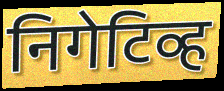
निगेटिव्ह